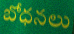
బోధనలు